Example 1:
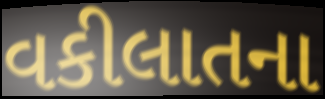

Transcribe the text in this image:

વકીલાતના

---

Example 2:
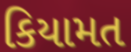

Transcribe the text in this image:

કિયામત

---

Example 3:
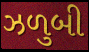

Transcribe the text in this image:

ઝળુબી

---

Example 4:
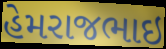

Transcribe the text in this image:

હેમરાજભાઇ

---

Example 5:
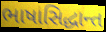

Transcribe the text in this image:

ભાષાસિદ્ધાન્ત